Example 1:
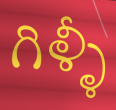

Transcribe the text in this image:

గిళ్ళీ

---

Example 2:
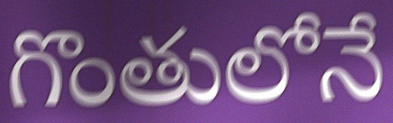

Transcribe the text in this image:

గొంతులోనే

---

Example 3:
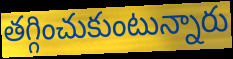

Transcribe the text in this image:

తగ్గించుకుంటున్నారు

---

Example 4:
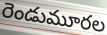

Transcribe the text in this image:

రెండుమూరల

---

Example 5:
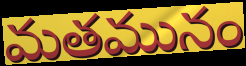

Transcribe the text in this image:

మతమునం